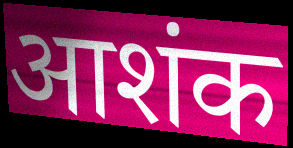
आशंक